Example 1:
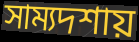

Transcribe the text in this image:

সাম্যদশায়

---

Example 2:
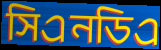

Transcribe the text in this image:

সিএনডিএ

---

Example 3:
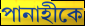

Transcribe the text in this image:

পানাহীকে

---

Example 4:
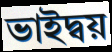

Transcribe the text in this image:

ভাইদ্বয়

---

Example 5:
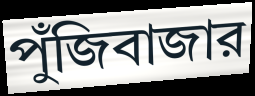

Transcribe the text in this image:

পুঁজিবাজার